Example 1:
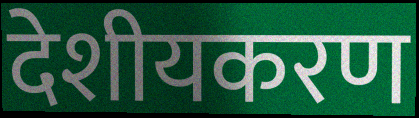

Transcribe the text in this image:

देशीयकरण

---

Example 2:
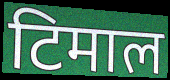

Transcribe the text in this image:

टिमाल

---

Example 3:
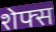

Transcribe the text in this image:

शेफ्स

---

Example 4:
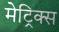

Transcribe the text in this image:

मेट्रिक्स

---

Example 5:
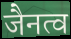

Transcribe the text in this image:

जैनत्व